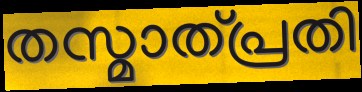
തസ്മാത്പ്രതി